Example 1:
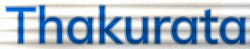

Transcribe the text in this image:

Thakurata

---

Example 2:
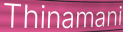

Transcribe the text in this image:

Thinamani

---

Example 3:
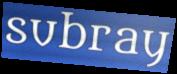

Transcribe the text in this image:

subray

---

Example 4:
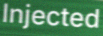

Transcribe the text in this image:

Injected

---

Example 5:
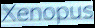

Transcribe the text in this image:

Xenopus